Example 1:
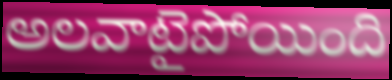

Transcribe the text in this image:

అలవాటైపోయింది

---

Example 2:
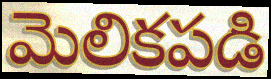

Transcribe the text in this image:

మెలికపడి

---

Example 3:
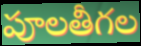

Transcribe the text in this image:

పూలతీగల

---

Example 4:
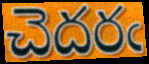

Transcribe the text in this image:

చెదరఁ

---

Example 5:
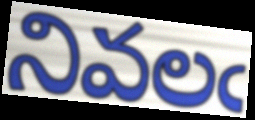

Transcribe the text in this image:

నివలఁ